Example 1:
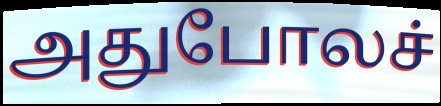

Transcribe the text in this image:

அதுபோலச்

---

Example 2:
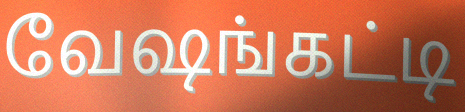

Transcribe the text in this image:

வேஷங்கட்டி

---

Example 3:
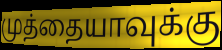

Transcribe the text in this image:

முத்தையாவுக்கு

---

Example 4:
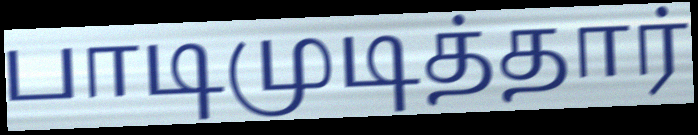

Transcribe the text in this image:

பாடிமுடித்தார்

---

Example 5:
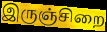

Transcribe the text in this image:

இருஞ்சிறை